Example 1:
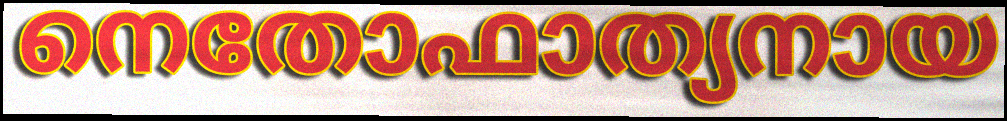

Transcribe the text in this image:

നെതോഫാത്യനായ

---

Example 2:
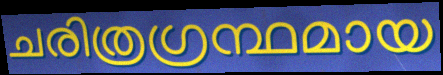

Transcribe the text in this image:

ചരിത്രഗ്രന്ഥമായ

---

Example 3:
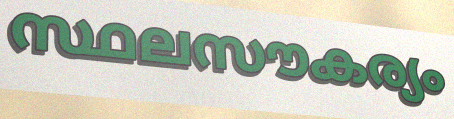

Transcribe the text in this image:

സ്ഥലസൗകര്യം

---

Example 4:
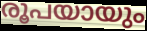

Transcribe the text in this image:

രൂപയായും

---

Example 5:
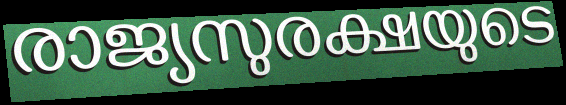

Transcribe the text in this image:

രാജ്യസുരക്ഷയുടെ